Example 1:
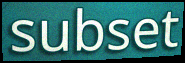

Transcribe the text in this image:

subset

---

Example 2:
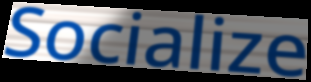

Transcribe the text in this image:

Socialize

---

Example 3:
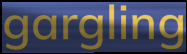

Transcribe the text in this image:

gargling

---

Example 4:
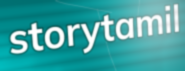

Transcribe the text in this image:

storytamil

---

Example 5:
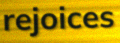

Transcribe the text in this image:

rejoices